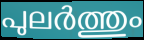
പുലർത്തും